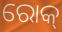
ରୋକ୍